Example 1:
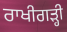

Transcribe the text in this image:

ਰਾਖੀਗੜ੍ਹੀ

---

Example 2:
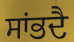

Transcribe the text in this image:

ਸਾਂਭਦੈ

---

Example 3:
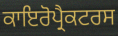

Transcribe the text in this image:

ਕਾਇਰੋਪ੍ਰੈਕਟਰਸ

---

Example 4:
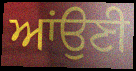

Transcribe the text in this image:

ਆਂਉਣੀ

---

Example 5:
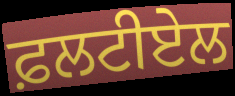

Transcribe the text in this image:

ਫ਼ਲਟੀਏਲ